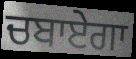
ਚਬਾਏਗਾ